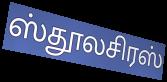
ஸ்தூலசிரஸ்